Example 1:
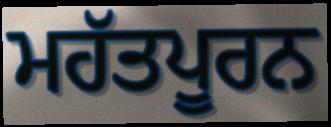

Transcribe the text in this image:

ਮਹੱਤਪੂਰਨ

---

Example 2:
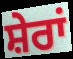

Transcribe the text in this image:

ਸ਼ੇਰਾਂ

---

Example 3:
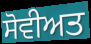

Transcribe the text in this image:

ਸੋਵੀਅਤ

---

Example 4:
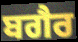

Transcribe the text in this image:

ਬਗੈਰ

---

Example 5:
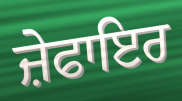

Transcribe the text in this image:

ਜ਼ੇਫਾਇਰ